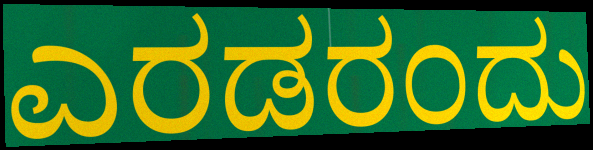
ಎರಡರಂದು